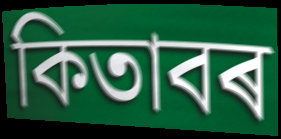
কিতাবৰ